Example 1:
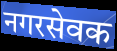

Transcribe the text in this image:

नगरसेवक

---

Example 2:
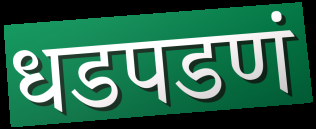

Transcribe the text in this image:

धडपडणं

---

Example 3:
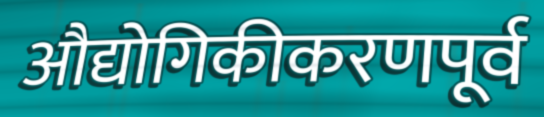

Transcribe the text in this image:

औद्योगिकीकरणपूर्व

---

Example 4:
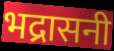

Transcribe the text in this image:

भद्रासनी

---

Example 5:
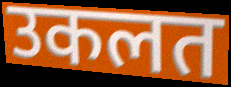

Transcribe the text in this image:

उकलत